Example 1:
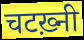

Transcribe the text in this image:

चटख़्नी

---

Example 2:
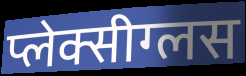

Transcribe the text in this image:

प्लेक्सीग्लस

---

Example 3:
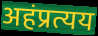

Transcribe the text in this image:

अहंप्रत्यय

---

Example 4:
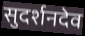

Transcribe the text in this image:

सुदर्शनदेव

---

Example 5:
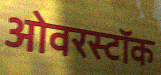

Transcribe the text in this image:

ओवरस्टॉक